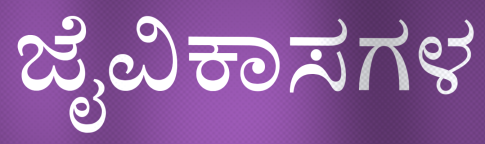
ಜೈವಿಕಾಸಗಳ